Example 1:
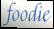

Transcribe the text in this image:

foodie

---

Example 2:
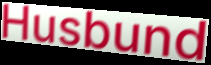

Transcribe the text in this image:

Husbund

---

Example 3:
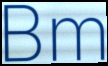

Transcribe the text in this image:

Bm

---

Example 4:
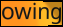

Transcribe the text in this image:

owing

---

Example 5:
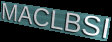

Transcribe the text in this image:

MACLBSI